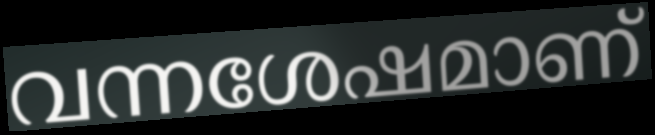
വന്നശേഷമാണ്